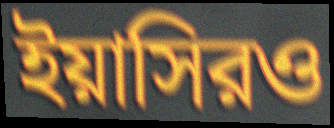
ইয়াসিরও